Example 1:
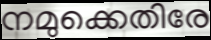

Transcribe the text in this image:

നമുക്കെതിരേ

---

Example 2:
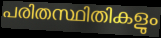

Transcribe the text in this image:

പരിതസ്ഥിതികളും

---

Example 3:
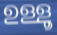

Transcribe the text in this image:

ഉള്ളൂ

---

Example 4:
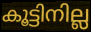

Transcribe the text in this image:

കൂട്ടിനില്ല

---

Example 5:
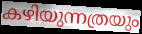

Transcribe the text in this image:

കഴിയുന്നത്രയും